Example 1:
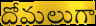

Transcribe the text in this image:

దోమలుగా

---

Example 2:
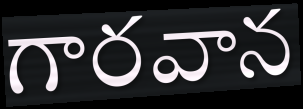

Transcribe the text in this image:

గారవాన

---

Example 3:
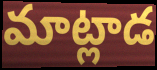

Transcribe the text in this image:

మాట్లాడ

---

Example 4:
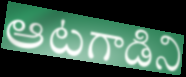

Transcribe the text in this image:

ఆటగాడిని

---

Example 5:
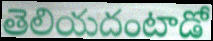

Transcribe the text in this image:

తెలియదంటాడో